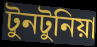
টুনটুনিয়া